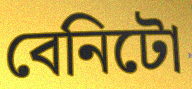
বেনিটো